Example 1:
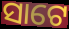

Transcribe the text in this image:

ସାଟେ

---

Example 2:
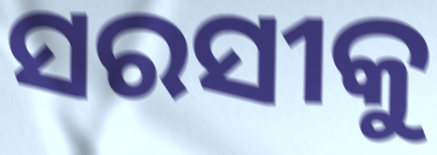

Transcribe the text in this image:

ସରସୀକୁ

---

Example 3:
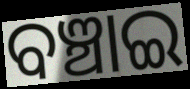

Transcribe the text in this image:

ବଞ୍ଚାଇ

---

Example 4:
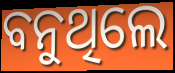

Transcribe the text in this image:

ବନୁଥିଲେ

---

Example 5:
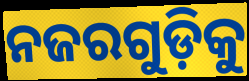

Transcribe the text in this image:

ନଜରଗୁଡ଼ିକୁ